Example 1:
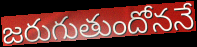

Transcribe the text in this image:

జరుగుతుందోననే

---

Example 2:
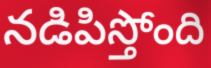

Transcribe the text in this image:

నడిపిస్తోంది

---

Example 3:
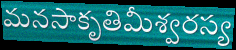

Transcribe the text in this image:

మనసాకృతిమీశ్వరస్య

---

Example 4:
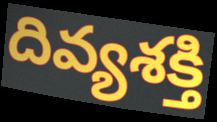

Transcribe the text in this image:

దివ్యశక్తి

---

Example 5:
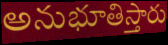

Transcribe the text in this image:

అనుభూతిస్తారు